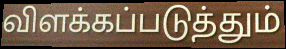
விளக்கப்படுத்தும்